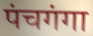
पंचगंगा